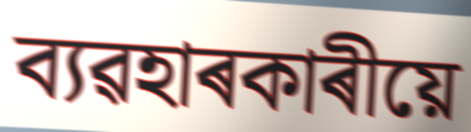
ব্যৱহাৰকাৰীয়ে